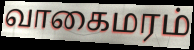
வாகைமரம்